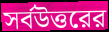
সর্বউত্তরের